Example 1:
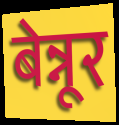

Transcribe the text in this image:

बेन्नूर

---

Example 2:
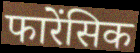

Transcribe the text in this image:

फारेंसिक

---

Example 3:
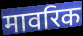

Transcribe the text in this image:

मावरिक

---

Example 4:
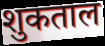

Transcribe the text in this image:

शुकताल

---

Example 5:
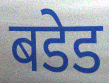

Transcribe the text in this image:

बडेड